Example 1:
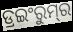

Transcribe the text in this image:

ଡ୍ରଇଂରୁମ୍‌ର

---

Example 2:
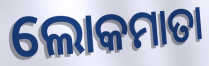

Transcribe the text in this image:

ଲୋକମାତା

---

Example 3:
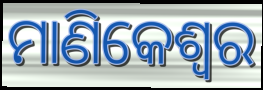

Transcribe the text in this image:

ମାଣିକେଶ୍ଵର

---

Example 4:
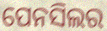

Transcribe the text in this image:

ପେନସିଲର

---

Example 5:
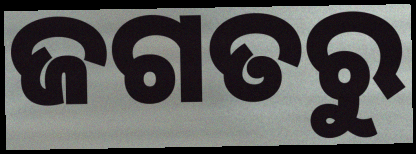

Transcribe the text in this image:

ଜଗତରୁ